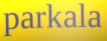
parkala